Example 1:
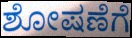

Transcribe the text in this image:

ಶೋಷಣೆಗೆ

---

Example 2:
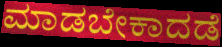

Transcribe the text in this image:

ಮಾಡಬೇಕಾದಡೆ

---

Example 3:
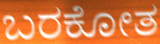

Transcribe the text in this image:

ಬರಕೋತ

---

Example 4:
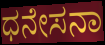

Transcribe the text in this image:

ಧನೇಸನಾ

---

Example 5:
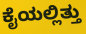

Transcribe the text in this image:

ಕೈಯಲ್ಲಿತ್ತು